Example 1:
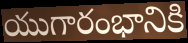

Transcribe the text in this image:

యుగారంభానికి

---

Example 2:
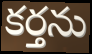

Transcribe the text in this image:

కర్తను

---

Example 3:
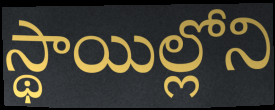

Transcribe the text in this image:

స్థాయిల్లోని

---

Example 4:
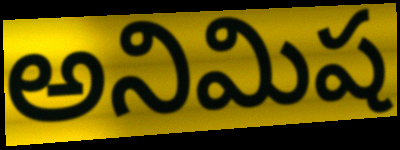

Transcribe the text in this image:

అనిమిష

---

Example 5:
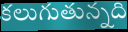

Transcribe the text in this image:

కలుగుతున్నది